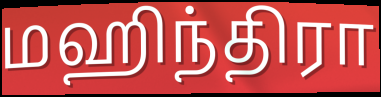
மஹிந்திரா